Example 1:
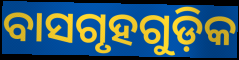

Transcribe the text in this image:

ବାସଗୃହଗୁଡ଼ିକ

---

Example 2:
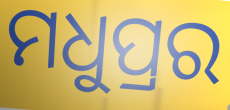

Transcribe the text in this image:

ମଧୁପ୍ରର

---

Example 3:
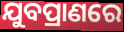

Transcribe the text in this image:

ଯୁବପ୍ରାଣରେ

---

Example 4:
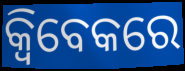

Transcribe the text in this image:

କ୍ୱିବେକରେ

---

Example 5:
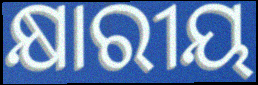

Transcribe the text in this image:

କ୍ଷାରୀୟ